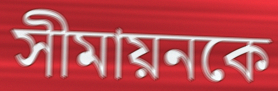
সীমায়নকে